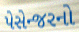
પેસેન્જરનો